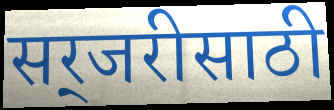
सर्जरीसाठी